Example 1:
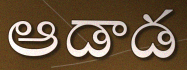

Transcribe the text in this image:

ఆడాడ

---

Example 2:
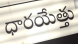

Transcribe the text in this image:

ధారయేత్తు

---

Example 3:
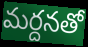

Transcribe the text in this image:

మర్దనతో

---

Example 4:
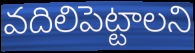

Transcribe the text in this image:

వదిలిపెట్టాలని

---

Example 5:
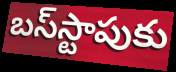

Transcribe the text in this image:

బస్‌స్టాపుకు